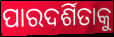
ପାରଦର୍ଶିତାକୁ